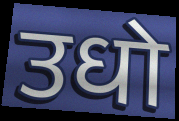
उधो